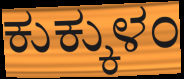
ಕುಕ್ಕುಳಂ